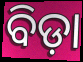
ବିଡ଼ା